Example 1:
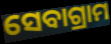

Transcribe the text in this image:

ସେବାଗ୍ରାମ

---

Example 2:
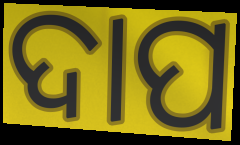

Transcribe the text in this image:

ଦାପ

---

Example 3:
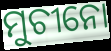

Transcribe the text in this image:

ମୁଚୀନୋ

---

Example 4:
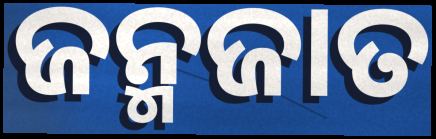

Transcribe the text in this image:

ଜନ୍ମଜାତ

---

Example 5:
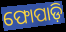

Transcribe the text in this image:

ଫୋପାଡ଼ି